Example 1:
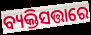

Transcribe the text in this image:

ବ୍ୟକ୍ତିସତ୍ତାରେ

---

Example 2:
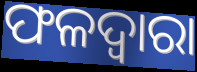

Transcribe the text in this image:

ଫଳଦ୍ୱାରା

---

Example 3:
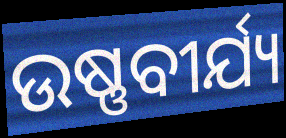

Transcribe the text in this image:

ଉଷ୍ଣବୀର୍ଯ୍ୟ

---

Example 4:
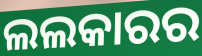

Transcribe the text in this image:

ଲଲକାରର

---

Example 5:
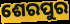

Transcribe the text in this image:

ଶେରପୁର